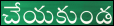
చేయకుండ